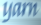
yarn